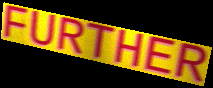
FURTHER